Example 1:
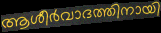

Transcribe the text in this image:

ആശീർവാദത്തിനായി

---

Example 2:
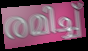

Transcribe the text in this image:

രമിച്ച്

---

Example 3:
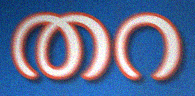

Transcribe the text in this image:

തറ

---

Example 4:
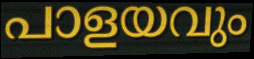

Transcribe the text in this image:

പാളയവും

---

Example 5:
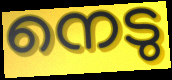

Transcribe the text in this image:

നെടു